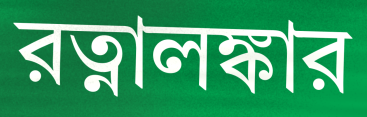
রত্নালঙ্কার